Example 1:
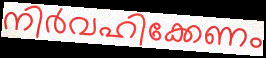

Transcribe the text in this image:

നിർവഹിക്കേണം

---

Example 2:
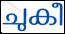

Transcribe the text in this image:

ചുകീ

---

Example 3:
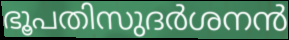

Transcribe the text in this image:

ഭൂപതിസുദർശനൻ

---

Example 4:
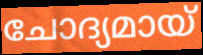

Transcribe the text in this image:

ചോദ്യമായ്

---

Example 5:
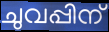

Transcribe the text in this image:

ചുവപ്പിന്